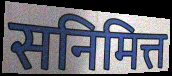
सनिमित्त